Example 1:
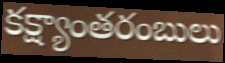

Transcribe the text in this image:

కక్ష్యాంతరంబులు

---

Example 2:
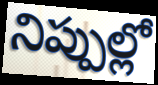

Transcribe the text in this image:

నిప్పుల్లో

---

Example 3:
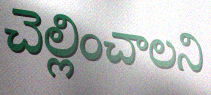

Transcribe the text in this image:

చెల్లించాలని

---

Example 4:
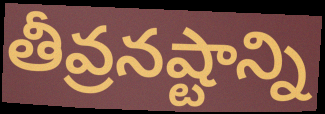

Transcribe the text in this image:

తీవ్రనష్టాన్ని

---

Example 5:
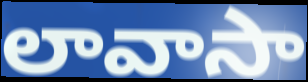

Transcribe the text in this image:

లావాసా